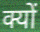
क्यों